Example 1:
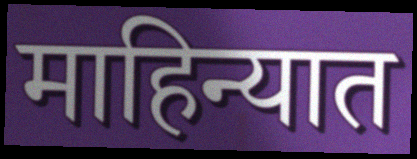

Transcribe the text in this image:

माहिन्यात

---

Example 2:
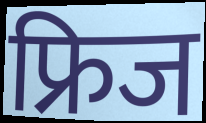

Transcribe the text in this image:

फ्रिज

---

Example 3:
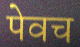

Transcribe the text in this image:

पेवच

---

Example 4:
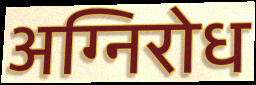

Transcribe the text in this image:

अग्निरोध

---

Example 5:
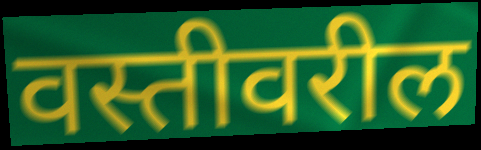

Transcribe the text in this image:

वस्तीवरील